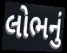
લોભનું